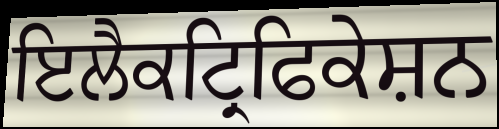
ਇਲੈਕਟ੍ਰਿਫਿਕੇਸ਼ਨ